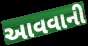
આવવાની